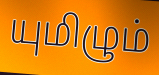
யுமிழும்